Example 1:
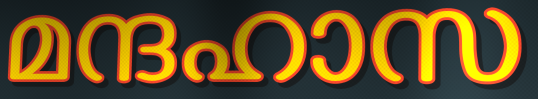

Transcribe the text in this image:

മന്ദഹാസ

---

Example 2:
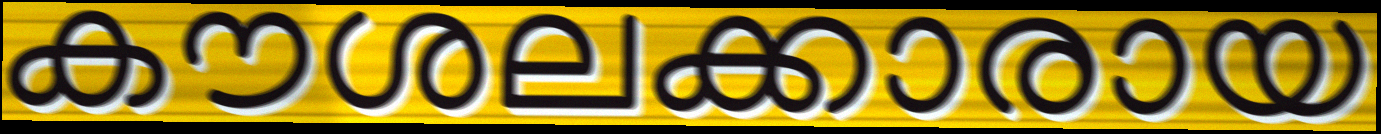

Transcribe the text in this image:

കൗശലക്കാരായ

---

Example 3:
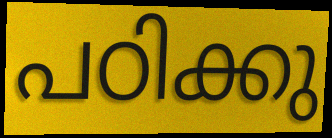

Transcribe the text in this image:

പഠിക്കു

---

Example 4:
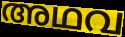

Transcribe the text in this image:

അഥവ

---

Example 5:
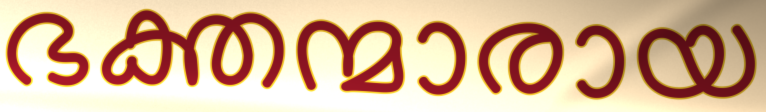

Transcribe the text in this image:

ഭക്തന്മാരായ